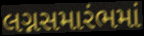
લગ્નસમારંભમાં